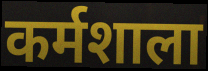
कर्मशाला